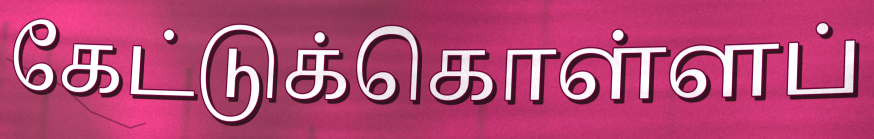
கேட்டுக்கொள்ளப்